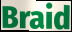
Braid